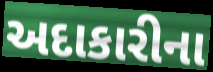
અદાકારીના